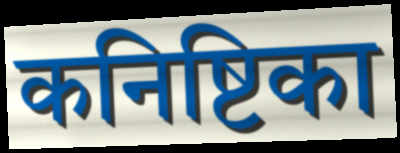
कनिष्टिका